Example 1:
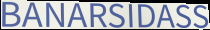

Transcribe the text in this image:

BANARSIDASS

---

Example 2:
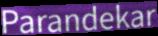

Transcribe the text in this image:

Parandekar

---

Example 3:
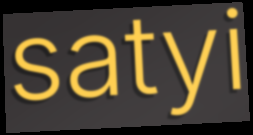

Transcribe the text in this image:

satyi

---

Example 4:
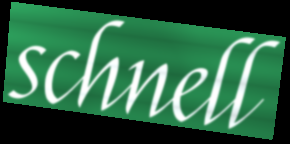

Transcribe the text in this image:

schnell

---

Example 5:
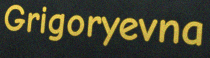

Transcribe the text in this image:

Grigoryevna